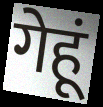
गेहूं